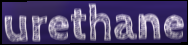
urethane